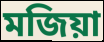
মজিয়া